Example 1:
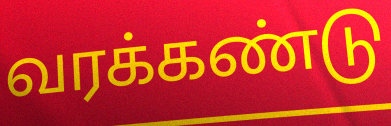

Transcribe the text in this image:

வரக்கண்டு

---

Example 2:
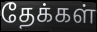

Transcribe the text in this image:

தேக்கள்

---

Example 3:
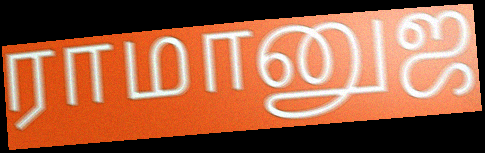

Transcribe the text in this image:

ராமானுஜ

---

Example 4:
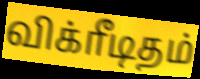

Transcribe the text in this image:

விக்ரீடிதம்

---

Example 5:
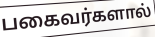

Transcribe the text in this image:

பகைவர்களால்